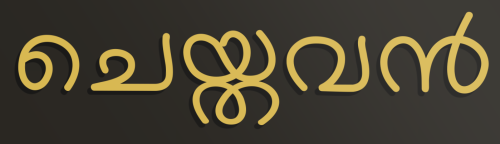
ചെയ്തവൻ